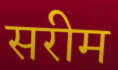
सरीम